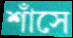
শাঁসে